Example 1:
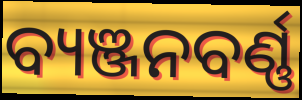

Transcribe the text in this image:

ବ୍ୟଞ୍ଜନବର୍ଣ୍ଣ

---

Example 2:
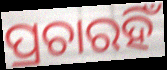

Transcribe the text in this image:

ପ୍ରଚାରହିଁ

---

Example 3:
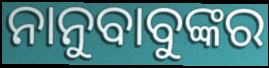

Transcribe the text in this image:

ନାନୁବାବୁଙ୍କର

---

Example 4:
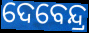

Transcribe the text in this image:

ଦେବେନ୍ଦ୍ର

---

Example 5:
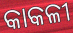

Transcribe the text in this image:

କାକଳୀ